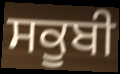
ਸਕੂਬੀ